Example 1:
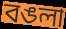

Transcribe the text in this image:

বঙলা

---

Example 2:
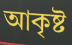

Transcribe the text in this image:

আকৃষ্ট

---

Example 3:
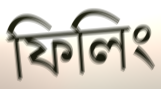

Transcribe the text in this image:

ফিলিং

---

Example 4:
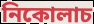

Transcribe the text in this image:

নিকোলাচ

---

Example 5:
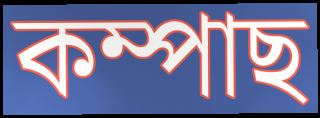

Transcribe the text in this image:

কম্পাছ